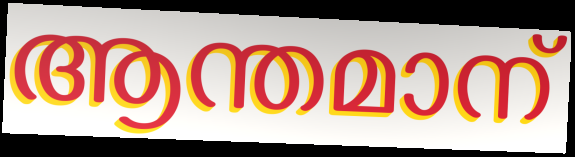
ആന്തമാന്